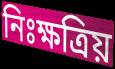
নিঃক্ষত্রিয়